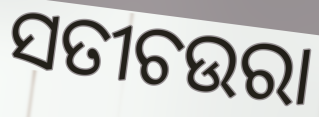
ସତୀଚଉରା